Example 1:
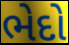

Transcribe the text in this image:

ભેદો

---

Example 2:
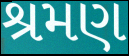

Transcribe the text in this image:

શ્રમણ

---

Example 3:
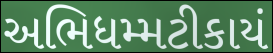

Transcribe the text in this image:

અભિધમ્મટીકાયં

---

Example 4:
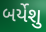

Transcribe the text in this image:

બર્યેશુ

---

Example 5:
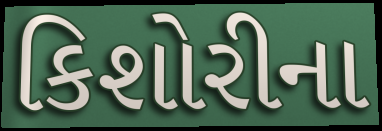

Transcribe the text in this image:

કિશોરીના